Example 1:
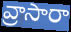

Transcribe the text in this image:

వ్రాసారా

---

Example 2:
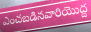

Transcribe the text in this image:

ఎంచబడినవారియొద్ద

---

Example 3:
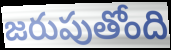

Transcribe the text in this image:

జరుపుతోంది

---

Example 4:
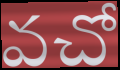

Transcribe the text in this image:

వచో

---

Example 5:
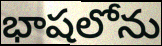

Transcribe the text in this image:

భాషలోను